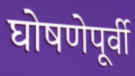
घोषणेपूर्वी